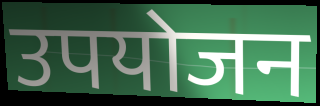
उपयोजन